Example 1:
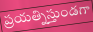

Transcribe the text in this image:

ప్రయత్నిస్తుండగా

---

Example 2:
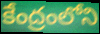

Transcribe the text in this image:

కేంద్రంలోని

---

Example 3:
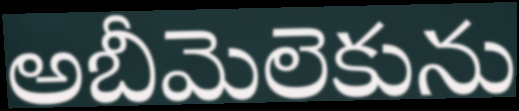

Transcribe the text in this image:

అబీమెలెకును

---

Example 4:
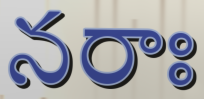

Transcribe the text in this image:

నరాః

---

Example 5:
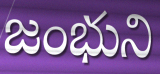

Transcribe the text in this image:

జంభుని